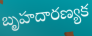
బృహదారణ్యక